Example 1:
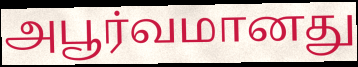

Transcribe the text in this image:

அபூர்வமானது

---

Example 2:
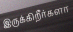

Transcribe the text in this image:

இருக்கிறீர்களா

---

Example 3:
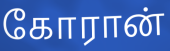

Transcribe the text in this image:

கோரான்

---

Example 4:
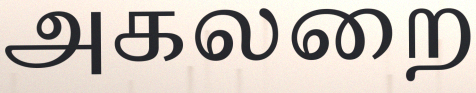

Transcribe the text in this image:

அகலறை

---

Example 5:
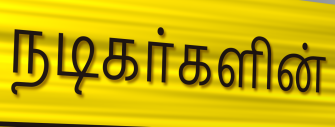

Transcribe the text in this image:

நடிகர்களின்